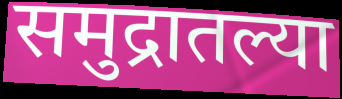
समुद्रातल्या